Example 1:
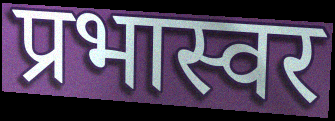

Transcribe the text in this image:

प्रभास्वर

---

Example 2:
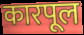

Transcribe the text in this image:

कारपूल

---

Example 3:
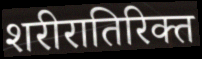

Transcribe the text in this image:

शरीरातिरिक्त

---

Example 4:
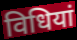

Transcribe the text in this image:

विधियां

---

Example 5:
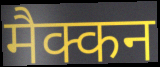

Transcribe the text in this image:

मैक्कन